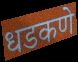
धडकणे